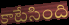
కాటేసింది